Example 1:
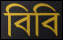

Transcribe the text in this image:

বিবি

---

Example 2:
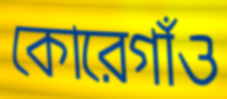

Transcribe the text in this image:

কোরেগাঁও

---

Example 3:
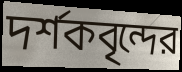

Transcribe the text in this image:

দর্শকবৃন্দের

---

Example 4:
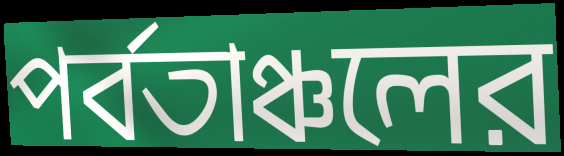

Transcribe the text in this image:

পর্বতাঞ্চলের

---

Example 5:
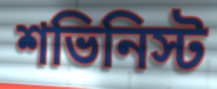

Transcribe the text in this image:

শভিনিস্ট